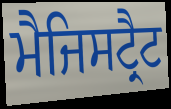
ਮੈਜਿਸਟ੍ਰੈਟ